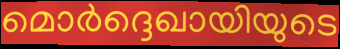
മൊർദ്ദെഖായിയുടെ